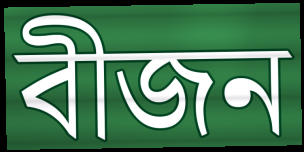
বীজন